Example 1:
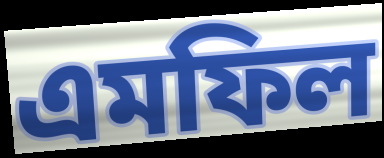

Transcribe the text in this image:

এমফিল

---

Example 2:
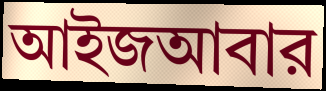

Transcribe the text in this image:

আইজআবার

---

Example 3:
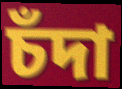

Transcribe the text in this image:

চঁদা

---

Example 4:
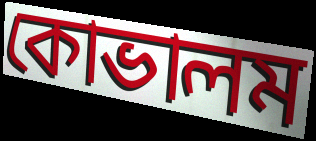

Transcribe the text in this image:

কোভালম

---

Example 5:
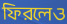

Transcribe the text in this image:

ফিরলেও